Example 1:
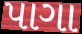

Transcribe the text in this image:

પાગા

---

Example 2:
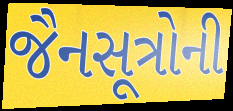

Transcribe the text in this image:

જૈનસૂત્રોની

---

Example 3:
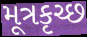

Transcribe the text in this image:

મૂત્રકૃચ્છ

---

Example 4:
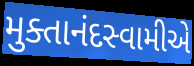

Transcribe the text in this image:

મુક્તાનંદસ્વામીએ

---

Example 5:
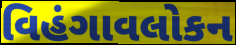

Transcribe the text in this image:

વિહંગાવલોકન